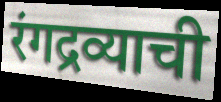
रंगद्रव्याची